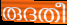
രുദതീ